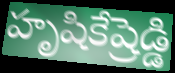
హృషికేష్రెడ్డి